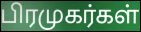
பிரமுகர்கள்